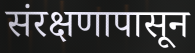
संरक्षणापासून